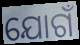
ଯୋଗଁ